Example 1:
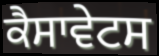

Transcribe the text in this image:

ਕੈਸਾਵੇਟਸ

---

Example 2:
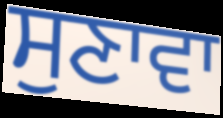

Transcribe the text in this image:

ਸੁਣਾਵਾ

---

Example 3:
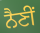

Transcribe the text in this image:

ਨੈਣੀਂ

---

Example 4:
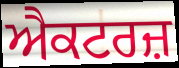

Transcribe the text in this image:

ਐਕਟਰਜ਼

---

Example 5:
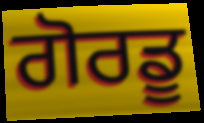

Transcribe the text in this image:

ਗੋਰਡੂ